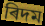
ৰিদম